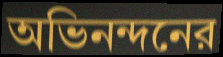
অভিনন্দনের